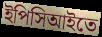
ইপিসিআইতে